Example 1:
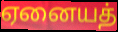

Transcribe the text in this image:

ஏனையத்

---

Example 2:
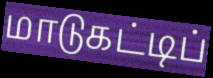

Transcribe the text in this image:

மாடுகட்டிப்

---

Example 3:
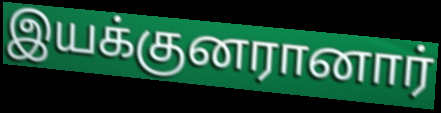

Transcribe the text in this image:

இயக்குனரானார்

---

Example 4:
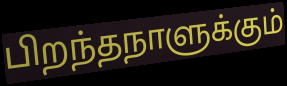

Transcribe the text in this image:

பிறந்தநாளுக்கும்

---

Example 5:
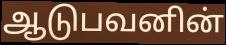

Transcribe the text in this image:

ஆடுபவனின்